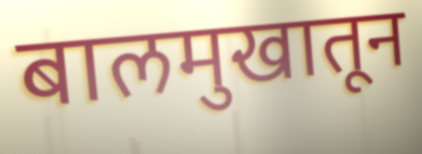
बालमुखातून